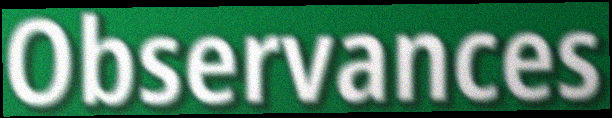
Observances